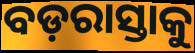
ବଡ଼ରାସ୍ତାକୁ